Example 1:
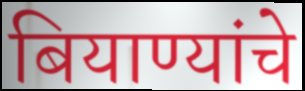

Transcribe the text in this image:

बियाण्यांचे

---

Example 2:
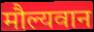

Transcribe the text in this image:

मौल्यवान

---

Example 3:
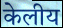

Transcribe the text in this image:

केलीय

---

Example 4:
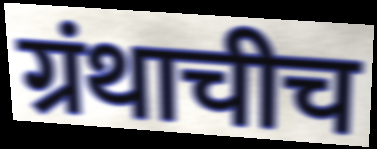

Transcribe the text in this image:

ग्रंथाचीच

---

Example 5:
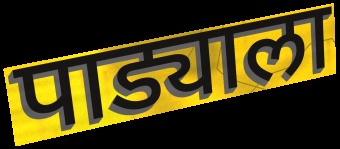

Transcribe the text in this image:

पाड्याला